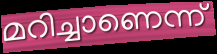
മറിച്ചാണെന്ന്